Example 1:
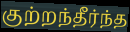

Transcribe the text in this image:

குற்றந்தீர்ந்த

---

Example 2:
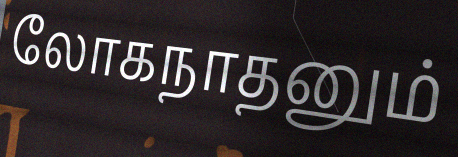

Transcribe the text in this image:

லோகநாதனும்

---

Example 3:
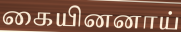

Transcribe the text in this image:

கையினனாய்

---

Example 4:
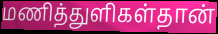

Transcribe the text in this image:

மணித்துளிகள்தான்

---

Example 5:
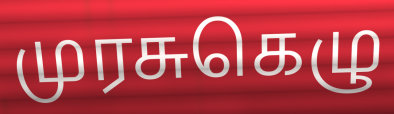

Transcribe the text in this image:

முரசுகெழு